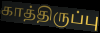
காத்திருப்பு